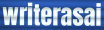
writerasai